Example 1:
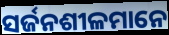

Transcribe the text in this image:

ସର୍ଜନଶୀଳମାନେ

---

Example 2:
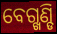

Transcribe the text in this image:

ବେଗ୍ଖଣ୍ଡି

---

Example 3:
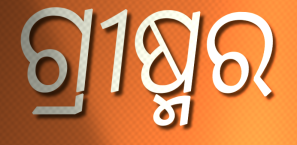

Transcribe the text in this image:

ଗ୍ରୀଷ୍ମର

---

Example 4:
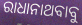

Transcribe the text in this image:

ରାଧାନାଥବାବୁ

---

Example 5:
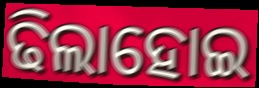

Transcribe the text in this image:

ଢିଲାହୋଇ